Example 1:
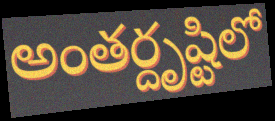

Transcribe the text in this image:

అంతర్దృష్టిలో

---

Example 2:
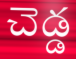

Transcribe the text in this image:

చెడ్డ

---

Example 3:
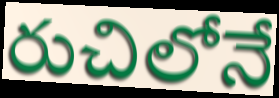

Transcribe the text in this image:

రుచిలోనే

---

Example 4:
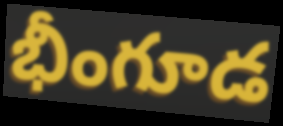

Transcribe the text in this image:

భీంగూడ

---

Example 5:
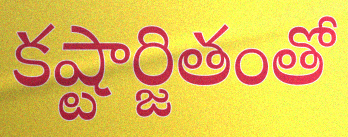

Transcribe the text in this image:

కష్టార్జితంతో